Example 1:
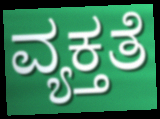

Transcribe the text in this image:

ವ್ಯಕ್ತತೆ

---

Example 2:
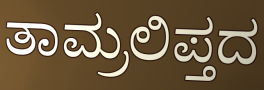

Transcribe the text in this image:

ತಾಮ್ರಲಿಪ್ತದ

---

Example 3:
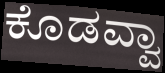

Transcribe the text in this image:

ಕೊಡವ್ವಾ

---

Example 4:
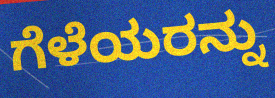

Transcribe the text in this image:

ಗೆಳೆಯರನ್ನು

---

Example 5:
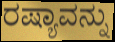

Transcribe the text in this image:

ರಷ್ಯಾವನ್ನು